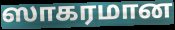
ஸாகரமான